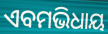
ଏବମଭିଧାୟ